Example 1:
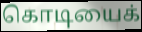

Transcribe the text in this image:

கொடியைக்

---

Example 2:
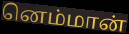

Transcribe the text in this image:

னெம்மான்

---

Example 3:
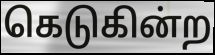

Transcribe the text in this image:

கெடுகின்ற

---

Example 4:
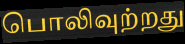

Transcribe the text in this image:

பொலிவுற்றது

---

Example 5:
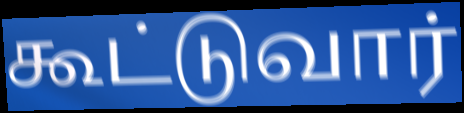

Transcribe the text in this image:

கூட்டுவார்